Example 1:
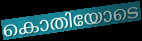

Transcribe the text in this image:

കൊതിയോടെ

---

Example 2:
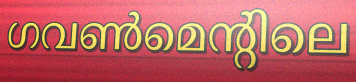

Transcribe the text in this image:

ഗവൺമെന്റിലെ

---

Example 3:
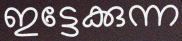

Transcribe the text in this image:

ഇട്ടേക്കുന്ന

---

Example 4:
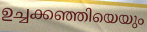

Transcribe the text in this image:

ഉച്ചക്കഞ്ഞിയെയും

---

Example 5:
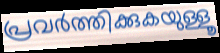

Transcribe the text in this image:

പ്രവർത്തിക്കുകയുള്ളൂ